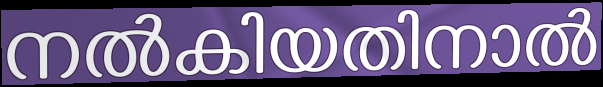
നൽകിയതിനാൽ